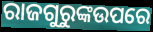
ରାଜଗୁରୁଙ୍କଉପରେ